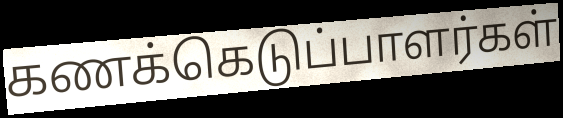
கணக்கெடுப்பாளர்கள்